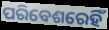
ପରିବେଶରେହିଁ